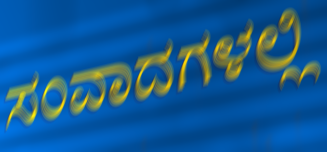
ಸಂವಾದಗಳಲ್ಲಿ